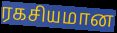
ரகசியமான